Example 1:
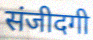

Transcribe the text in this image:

संजीदगी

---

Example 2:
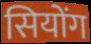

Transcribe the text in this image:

सियोंग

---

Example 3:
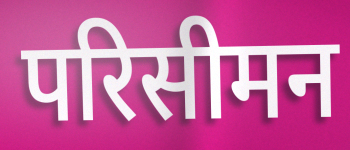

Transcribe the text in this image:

परिसीमन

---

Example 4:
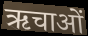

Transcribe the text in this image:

ऋचाओं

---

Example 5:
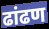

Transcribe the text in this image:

ढांढण